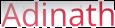
Adinath